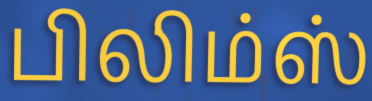
பிலிம்ஸ்